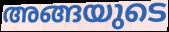
അങ്ങയുടെ